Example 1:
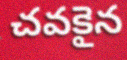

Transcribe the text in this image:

చవకైన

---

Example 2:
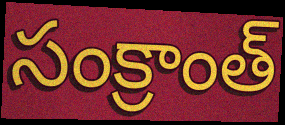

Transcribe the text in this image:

సంక్రాంత్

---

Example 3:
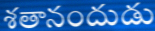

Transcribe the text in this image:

శతానందుడు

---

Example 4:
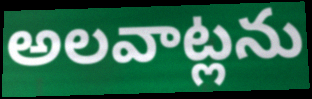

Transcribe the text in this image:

అలవాట్లను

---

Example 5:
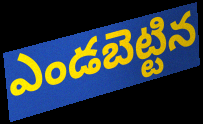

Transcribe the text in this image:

ఎండబెట్టిన